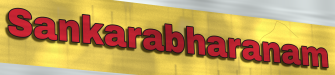
Sankarabharanam